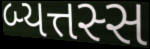
બ્યત્તસ્સ